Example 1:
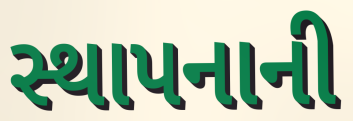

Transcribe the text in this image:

સ્થાપનાની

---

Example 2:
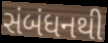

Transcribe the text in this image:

સંબંધનથી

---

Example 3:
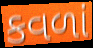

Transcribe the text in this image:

કવળાં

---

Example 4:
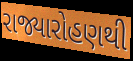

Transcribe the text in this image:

રાજ્યારોહણથી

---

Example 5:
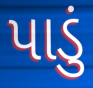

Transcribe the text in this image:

પાડું